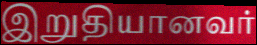
இறுதியானவர்